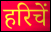
हरिचें